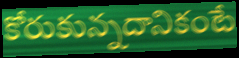
కోరుకున్నదానికంటే